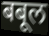
बबूल